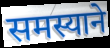
समस्याने